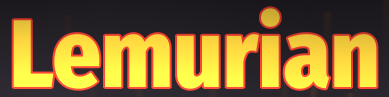
Lemurian